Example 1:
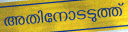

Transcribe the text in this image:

അതിനോടടുത്ത്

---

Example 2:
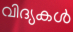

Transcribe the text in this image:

വിദ്യകൾ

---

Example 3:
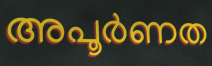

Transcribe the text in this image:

അപൂർണത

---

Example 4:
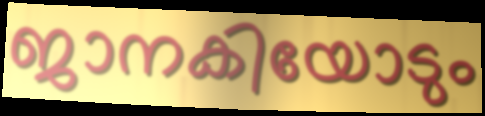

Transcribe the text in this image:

ജാനകിയോടും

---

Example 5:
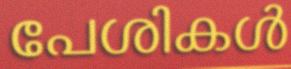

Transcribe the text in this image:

പേശികൾ